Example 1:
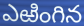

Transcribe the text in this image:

ఎఱింగిన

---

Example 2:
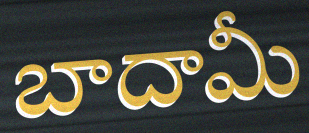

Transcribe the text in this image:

బాదామీ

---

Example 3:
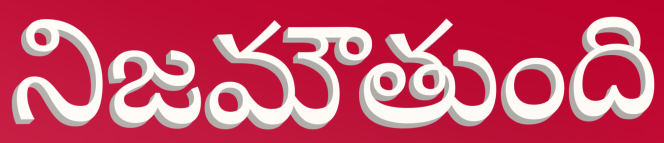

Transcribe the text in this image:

నిజమౌతుంది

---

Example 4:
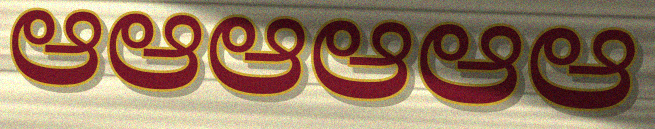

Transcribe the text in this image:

ఆఆఆఆఆఆ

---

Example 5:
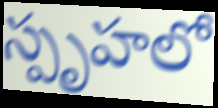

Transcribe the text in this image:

స్పృహలో